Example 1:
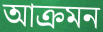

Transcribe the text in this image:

আক্ৰমন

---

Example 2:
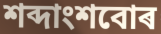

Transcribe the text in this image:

শব্দাংশবোৰ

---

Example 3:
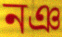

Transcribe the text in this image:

নঞ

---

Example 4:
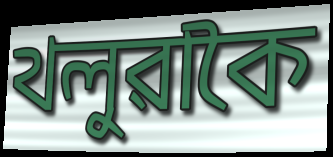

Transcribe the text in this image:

থলুৱাকৈ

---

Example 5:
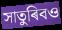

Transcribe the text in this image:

সাতুৰিবও